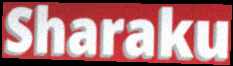
Sharaku